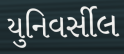
યુનિવર્સીલ